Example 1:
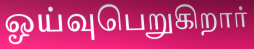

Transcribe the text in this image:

ஓய்வுபெறுகிறார்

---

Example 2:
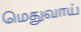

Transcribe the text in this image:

மெதுவாய்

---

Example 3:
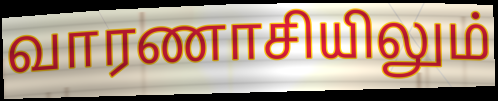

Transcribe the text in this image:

வாரணாசியிலும்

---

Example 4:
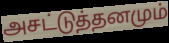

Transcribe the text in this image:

அசட்டுத்தனமும்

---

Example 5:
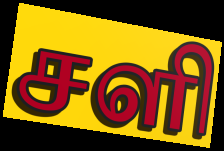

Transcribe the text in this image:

சளி